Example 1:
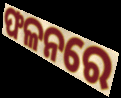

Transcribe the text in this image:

ଫଳନରେ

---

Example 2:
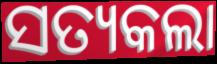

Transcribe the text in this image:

ସତ୍ୟକଲା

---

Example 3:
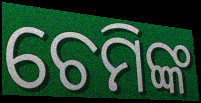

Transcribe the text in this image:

ଚେମିଙ୍କ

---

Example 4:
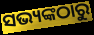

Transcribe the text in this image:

ସଭ୍ୟଙ୍କଠାରୁ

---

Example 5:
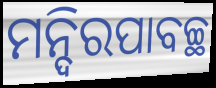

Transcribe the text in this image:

ମନ୍ଦିରପାବଚ୍ଛ